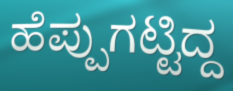
ಹೆಪ್ಪುಗಟ್ಟಿದ್ದ